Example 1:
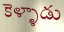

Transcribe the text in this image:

కెళ్ళాడు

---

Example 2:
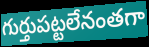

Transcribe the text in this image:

గుర్తుపట్టలేనంతగా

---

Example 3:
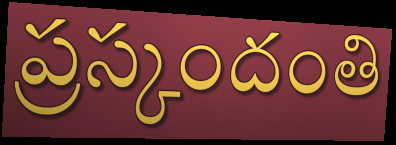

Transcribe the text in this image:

ప్రస్కందంతి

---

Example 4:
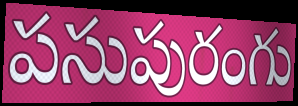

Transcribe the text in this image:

పసుపురంగు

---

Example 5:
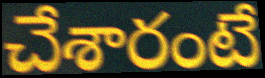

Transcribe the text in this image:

చేశారంటే